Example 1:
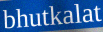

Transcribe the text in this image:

bhutkalat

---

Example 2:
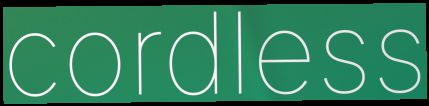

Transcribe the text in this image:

cordless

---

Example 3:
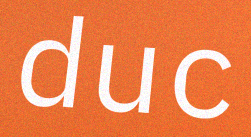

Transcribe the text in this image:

duc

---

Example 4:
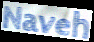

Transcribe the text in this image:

Naveh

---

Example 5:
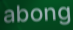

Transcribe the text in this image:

abong